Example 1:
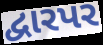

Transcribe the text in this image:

દ્વારપર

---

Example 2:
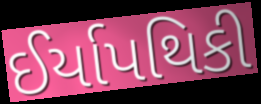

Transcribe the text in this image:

ઈર્યાપથિકી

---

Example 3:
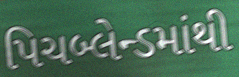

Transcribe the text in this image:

પિચબ્લેન્ડમાંથી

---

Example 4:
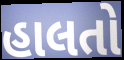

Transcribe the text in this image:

હાલતો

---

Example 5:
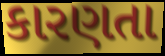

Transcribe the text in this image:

કારણતા